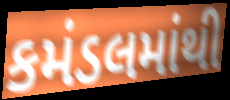
કમંડલમાંથી